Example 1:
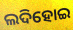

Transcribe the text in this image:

ଲଦିହୋଇ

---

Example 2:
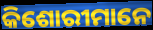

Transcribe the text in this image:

କିଶୋରୀମାନେ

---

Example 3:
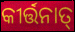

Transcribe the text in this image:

କୀର୍ତ୍ତନାତ୍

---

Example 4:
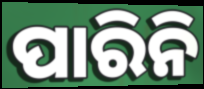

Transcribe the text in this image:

ପାରିନି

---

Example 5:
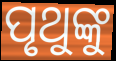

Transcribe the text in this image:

ପୃଥୁଙ୍କୁ